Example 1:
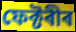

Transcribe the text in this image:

ফেক্টৰীৰ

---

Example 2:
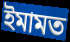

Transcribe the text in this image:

ইমামত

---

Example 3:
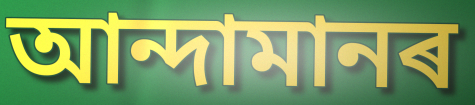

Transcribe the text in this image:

আন্দামানৰ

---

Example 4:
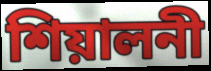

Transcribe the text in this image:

শিয়ালনী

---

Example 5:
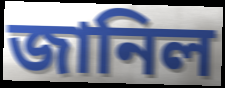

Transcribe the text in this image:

জানিল